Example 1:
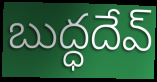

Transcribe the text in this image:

బుద్ధదేవ్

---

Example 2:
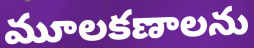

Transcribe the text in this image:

మూలకణాలను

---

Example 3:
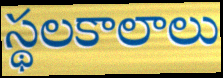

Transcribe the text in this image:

స్థలకాలాలు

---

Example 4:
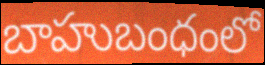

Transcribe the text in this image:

బాహుబంధంలో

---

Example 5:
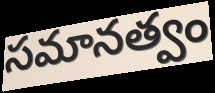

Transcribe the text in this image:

సమానత్వం